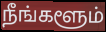
நீங்களூம்